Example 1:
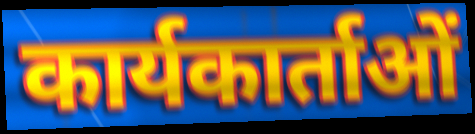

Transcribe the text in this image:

कार्यकार्ताओं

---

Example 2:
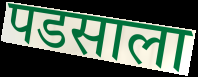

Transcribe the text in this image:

पडसाला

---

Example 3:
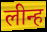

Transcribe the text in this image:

लीन्ह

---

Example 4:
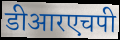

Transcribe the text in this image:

डीआरएचपी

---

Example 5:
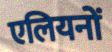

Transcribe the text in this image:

एलियनों